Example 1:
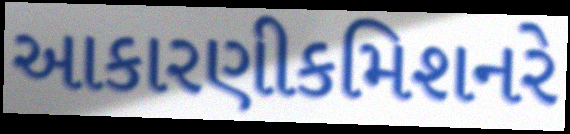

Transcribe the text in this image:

આકારણીકમિશનરે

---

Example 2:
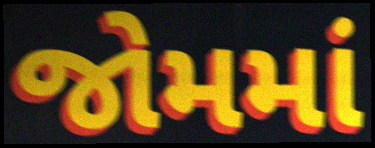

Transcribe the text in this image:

જોમમાં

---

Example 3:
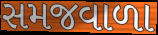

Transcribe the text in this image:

સમજવાળા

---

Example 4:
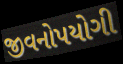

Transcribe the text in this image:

જીવનોપયોગી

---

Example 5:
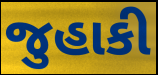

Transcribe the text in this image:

જુહાકી